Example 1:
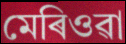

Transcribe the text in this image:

মেৰিওৱা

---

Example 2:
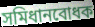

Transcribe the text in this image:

সমিধানবোধক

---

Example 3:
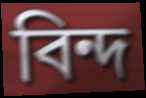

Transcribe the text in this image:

বিন্দ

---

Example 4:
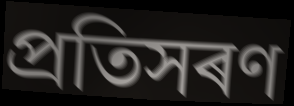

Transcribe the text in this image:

প্ৰতিসৰণ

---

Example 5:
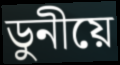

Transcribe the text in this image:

ডুনীয়ে